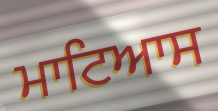
ਮਾਟਿਆਸ